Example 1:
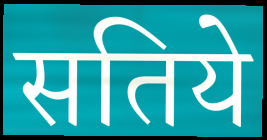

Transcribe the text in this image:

सतिये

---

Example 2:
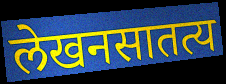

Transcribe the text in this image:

लेखनसातत्य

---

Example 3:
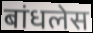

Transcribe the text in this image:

बांधलेस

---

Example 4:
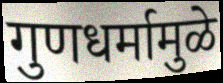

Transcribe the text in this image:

गुणधर्मामुळे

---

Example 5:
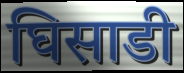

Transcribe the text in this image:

घिसाडी